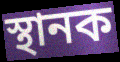
স্থানক